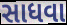
સાધવા